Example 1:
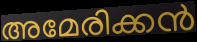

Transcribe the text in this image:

അമേരിക്കൻ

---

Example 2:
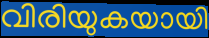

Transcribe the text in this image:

വിരിയുകയായി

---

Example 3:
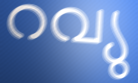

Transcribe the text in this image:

റവ്യു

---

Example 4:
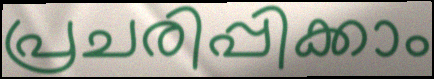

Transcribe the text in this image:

പ്രചരിപ്പിക്കാം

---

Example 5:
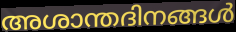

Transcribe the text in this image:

അശാന്തദിനങ്ങൾ